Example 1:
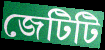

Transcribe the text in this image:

জেটিটি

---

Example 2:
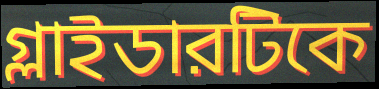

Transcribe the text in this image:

গ্লাইডারটিকে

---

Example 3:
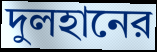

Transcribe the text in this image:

দুলহানের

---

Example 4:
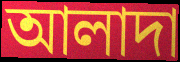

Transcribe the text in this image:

আলাদা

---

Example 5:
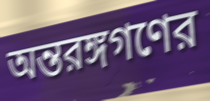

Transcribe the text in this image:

অন্তরঙ্গগণের